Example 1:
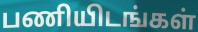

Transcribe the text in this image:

பணியிடங்கள்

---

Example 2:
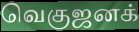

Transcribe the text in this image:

வெகுஜனக்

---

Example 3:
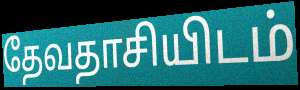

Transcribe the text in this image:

தேவதாசியிடம்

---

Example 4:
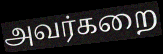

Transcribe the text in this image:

அவர்கறை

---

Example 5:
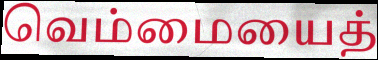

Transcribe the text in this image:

வெம்மையைத்